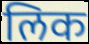
लिक